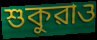
শুকুৱাও